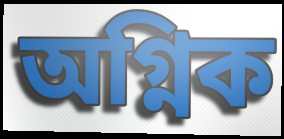
অগ্নিক